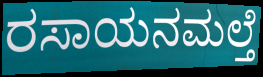
ರಸಾಯನಮಲ್ತೆ